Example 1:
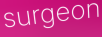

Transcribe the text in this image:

surgeon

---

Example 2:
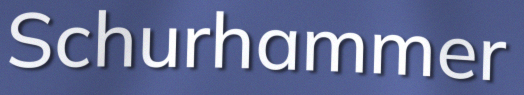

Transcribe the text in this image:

Schurhammer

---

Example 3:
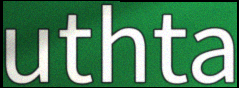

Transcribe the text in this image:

uthta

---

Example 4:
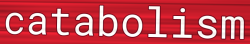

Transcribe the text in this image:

catabolism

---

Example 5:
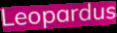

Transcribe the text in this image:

Leopardus